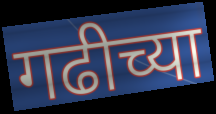
गढीच्या